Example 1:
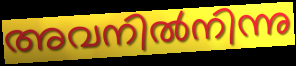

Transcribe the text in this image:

അവനിൽനിന്നു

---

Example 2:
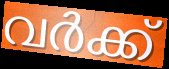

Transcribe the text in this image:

വർക്ക്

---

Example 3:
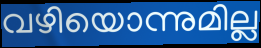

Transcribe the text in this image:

വഴിയൊന്നുമില്ല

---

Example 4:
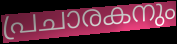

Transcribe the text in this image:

പ്രചാരകനും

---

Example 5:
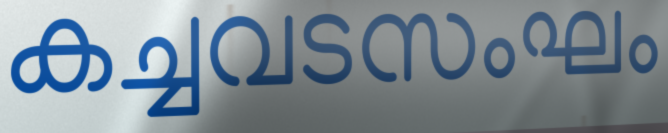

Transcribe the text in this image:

കച്ചവടസംഘം